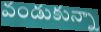
వండుకున్నా